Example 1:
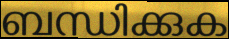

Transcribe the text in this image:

ബന്ധിക്കുക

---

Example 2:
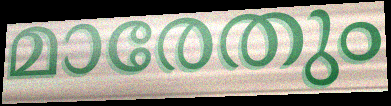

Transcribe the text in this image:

മാരേതും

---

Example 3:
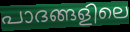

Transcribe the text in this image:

പാദങ്ങളിലെ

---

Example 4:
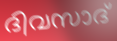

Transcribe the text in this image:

ദിവസാദ്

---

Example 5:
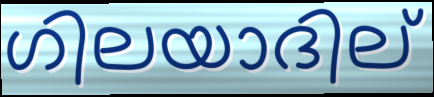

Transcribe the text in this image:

ഗിലയാദില്